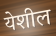
येशील